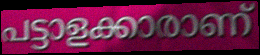
പട്ടാളക്കാരാണ്